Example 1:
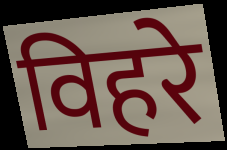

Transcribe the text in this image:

विहरे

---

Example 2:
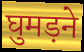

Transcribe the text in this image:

घुमड़ने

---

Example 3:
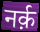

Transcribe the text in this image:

नर्क़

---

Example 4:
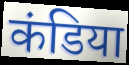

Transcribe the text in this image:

कंडिया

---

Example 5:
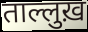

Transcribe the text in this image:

ताल्लुख़